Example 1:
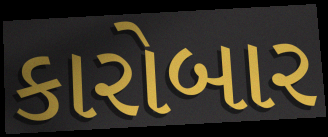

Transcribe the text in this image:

કારોબાર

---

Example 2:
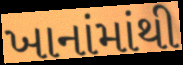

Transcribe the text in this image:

ખાનાંમાંથી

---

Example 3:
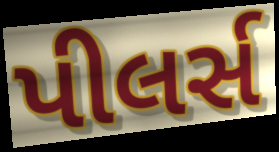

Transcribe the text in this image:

પીલર્સ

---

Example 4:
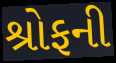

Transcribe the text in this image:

શ્રોફની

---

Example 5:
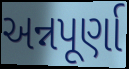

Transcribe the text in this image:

અન્નપૂર્ણા